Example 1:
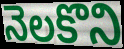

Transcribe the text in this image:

నెలకొని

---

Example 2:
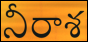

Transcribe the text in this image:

నీరాశ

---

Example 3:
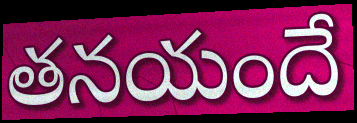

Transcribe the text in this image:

తనయందే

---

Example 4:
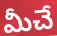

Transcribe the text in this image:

మీచే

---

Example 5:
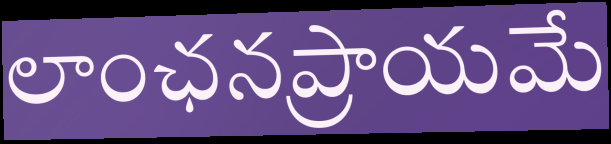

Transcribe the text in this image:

లాంఛనప్రాయమే